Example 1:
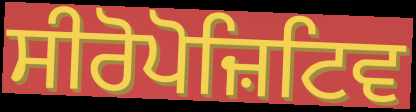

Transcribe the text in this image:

ਸੀਰੋਪੋਜ਼ਿਟਿਵ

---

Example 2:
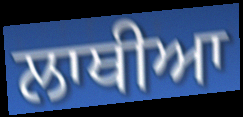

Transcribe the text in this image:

ਲਾਥੀਆ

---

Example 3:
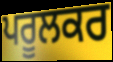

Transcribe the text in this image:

ਪਰੂਲਕਰ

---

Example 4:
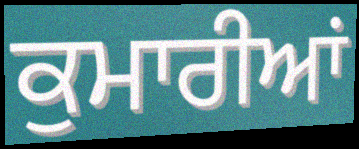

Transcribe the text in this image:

ਕੁਮਾਰੀਆਂ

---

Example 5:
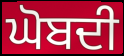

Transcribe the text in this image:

ਘੋਬਦੀ